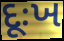
દૂઃખ